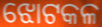
ଝୋଟକଳ